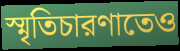
স্মৃতিচারণাতেও